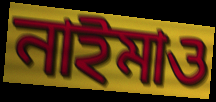
নাইমাও